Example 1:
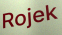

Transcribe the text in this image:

Rojek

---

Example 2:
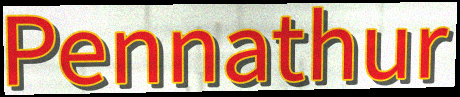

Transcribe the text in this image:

Pennathur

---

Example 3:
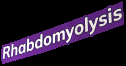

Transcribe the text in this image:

Rhabdomyolysis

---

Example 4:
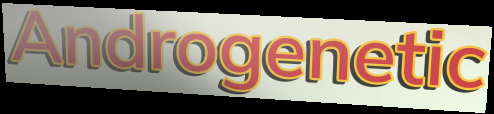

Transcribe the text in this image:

Androgenetic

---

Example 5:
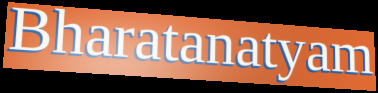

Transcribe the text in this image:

Bharatanatyam